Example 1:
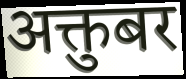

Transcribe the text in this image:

अक्तुबर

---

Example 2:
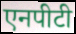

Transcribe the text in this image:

एनपीटी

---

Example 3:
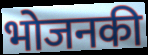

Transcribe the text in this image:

भोजनकी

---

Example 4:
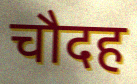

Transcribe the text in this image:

चौदह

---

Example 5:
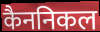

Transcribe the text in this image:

कैननिकल